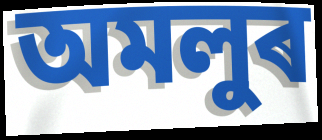
অমলুৰ